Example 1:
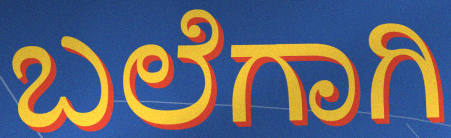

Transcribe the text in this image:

ಬಲೆಗಾಗಿ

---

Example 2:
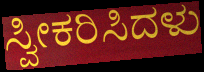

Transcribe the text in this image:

ಸ್ವೀಕರಿಸಿದಳು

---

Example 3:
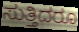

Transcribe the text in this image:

ಸುತ್ತಿದರೂ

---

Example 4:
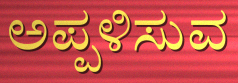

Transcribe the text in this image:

ಅಪ್ಪಳಿಸುವ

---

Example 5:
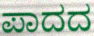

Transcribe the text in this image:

ಪಾದದ